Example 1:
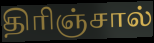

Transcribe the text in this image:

திரிஞ்சால்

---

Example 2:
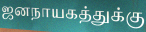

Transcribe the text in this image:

ஜனநாயகத்துக்கு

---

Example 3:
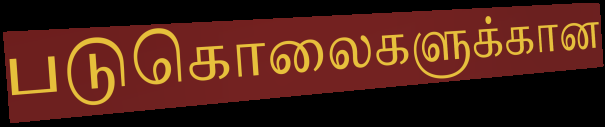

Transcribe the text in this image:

படுகொலைகளுக்கான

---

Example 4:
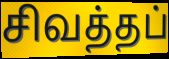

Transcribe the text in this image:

சிவத்தப்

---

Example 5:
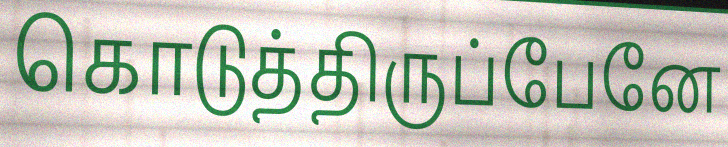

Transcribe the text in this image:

கொடுத்திருப்பேனே